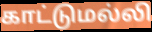
காட்டுமல்லி